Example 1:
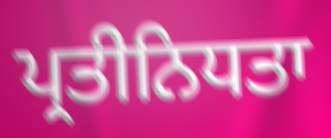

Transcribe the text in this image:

ਪ੍ਰਤੀਨਿਧਤਾ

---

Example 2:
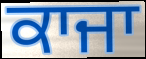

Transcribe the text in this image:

ਕਾਜਾ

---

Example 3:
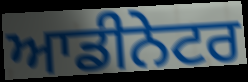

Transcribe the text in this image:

ਆਡੀਨੇਟਰ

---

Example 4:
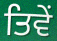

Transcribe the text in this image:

ਤਿਵੇਂ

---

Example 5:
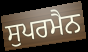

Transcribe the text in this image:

ਸੁਪਰਮੈਨ